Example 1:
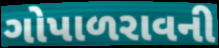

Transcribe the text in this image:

ગોપાળરાવની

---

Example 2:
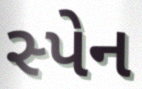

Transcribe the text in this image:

સ્પેન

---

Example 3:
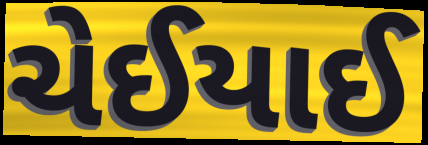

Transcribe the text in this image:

ચેઈયાઈ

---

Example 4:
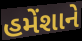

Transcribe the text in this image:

હમેંશાને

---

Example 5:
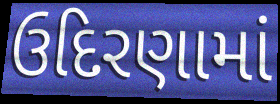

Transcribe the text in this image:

ઉદિરણામાં